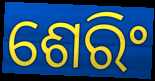
ଶେରିଂ